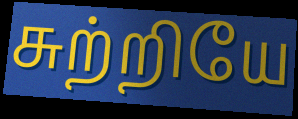
சுற்றியே